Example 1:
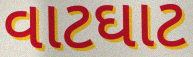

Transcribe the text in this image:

વાટઘાટ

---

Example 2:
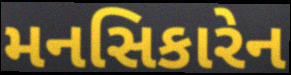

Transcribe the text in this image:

મનસિકારેન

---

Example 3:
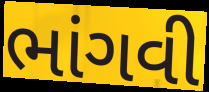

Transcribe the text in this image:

ભાંગવી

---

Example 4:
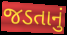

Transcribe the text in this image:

જડતાનું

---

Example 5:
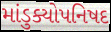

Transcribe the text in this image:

માંડુક્યોપનિષદ